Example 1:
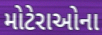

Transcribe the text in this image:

મોટેરાઓના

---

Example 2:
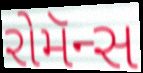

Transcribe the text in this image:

રોમૅન્સ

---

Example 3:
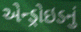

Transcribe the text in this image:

એન્ડ્રોઇડનું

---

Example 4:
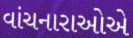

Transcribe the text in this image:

વાંચનારાઓએ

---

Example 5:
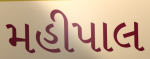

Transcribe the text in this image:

મહીપાલ